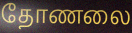
தோணலை